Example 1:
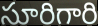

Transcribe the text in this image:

సూరిగారి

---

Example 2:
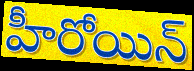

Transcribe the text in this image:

హీరోయిన్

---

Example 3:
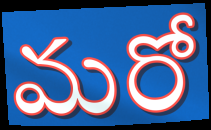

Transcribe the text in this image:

మరో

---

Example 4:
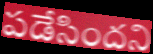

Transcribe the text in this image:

పడేసిందని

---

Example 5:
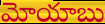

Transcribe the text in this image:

మోయాబు